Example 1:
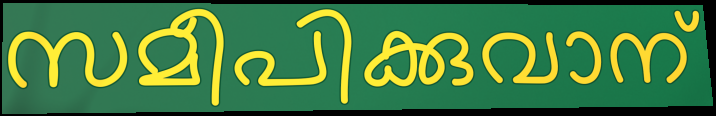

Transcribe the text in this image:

സമീപിക്കുവാന്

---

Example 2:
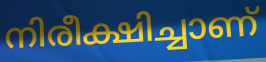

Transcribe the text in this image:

നിരീക്ഷിച്ചാണ്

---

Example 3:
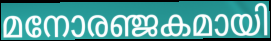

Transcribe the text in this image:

മനോരഞ്ജകമായി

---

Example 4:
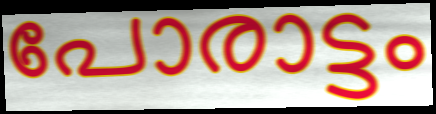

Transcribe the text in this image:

പോരാട്ടം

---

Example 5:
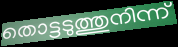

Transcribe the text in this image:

തൊട്ടടുത്തുനിന്ന്